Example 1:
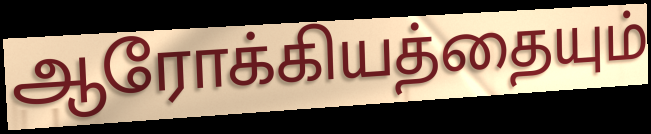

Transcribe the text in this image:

ஆரோக்கியத்தையும்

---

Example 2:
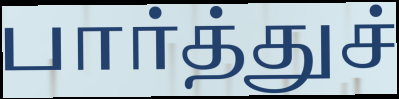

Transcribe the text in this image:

பார்த்துச்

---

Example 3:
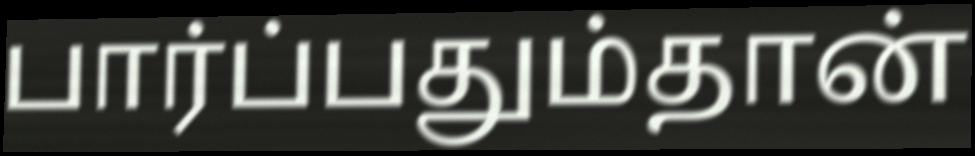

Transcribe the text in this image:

பார்ப்பதும்தான்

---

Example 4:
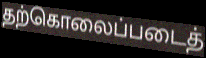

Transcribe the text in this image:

தற்கொலைப்படைத்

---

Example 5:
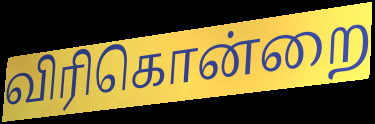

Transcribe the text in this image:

விரிகொன்றை